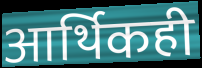
आर्थिकही